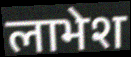
लाभेश